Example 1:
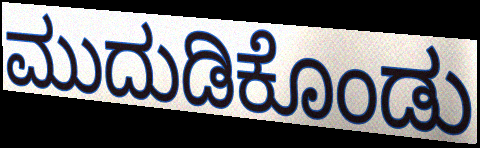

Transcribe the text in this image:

ಮುದುಡಿಕೊಂಡು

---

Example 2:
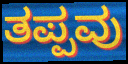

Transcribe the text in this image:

ತಪ್ಪವು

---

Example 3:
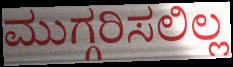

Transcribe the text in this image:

ಮುಗ್ಗರಿಸಲಿಲ್ಲ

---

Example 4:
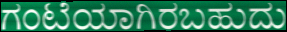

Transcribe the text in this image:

ಗಂಟೆಯಾಗಿರಬಹುದು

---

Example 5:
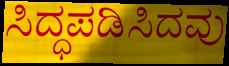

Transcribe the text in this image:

ಸಿದ್ಧಪಡಿಸಿದವು